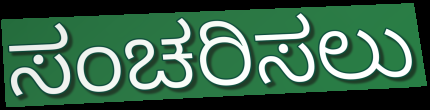
ಸಂಚರಿಸಲು